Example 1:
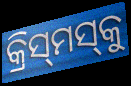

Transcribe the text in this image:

କ୍ରିସ୍‌ମସ୍‌କୁ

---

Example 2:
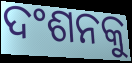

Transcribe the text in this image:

ଦଂଶନକୁ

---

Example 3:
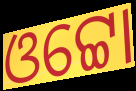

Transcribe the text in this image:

ଓଟ୍ଟୋ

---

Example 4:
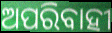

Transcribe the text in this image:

ଅପରିବାହୀ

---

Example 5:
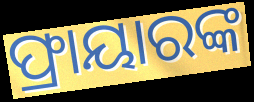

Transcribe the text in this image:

ଫ୍ରାୟାରଙ୍କ